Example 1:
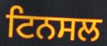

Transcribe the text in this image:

ਟਿਨਸਲ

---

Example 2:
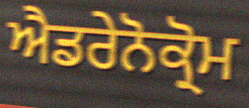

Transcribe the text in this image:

ਐਡਰੇਨੋਕ੍ਰੋਮ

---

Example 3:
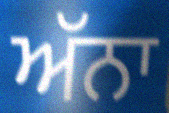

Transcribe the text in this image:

ਅੱਨਾ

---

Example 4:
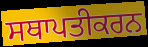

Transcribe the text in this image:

ਸਥਾਪਤੀਕਰਨ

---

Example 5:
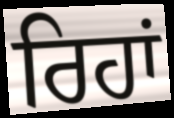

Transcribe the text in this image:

ਰਿਹਾਂ